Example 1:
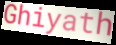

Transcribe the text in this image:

Ghiyath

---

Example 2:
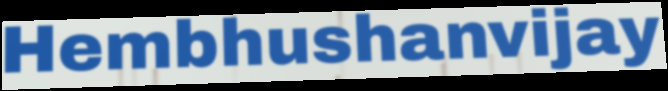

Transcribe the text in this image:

Hembhushanvijay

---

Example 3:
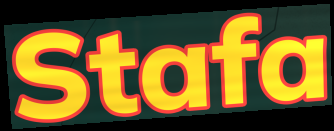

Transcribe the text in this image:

Stafa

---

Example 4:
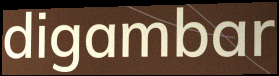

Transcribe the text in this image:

digambar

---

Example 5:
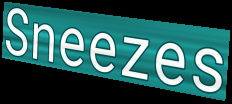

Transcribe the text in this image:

Sneezes